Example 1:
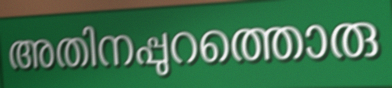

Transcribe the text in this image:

അതിനപ്പുറത്തൊരു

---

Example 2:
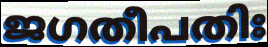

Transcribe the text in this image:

ജഗതീപതിഃ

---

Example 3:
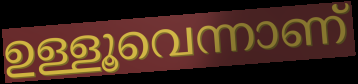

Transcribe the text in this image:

ഉള്ളൂവെന്നാണ്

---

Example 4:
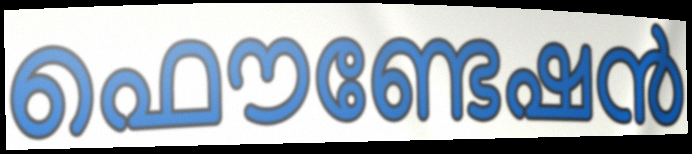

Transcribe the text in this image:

ഫൌണ്ടേഷൻ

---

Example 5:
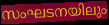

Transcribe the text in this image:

സംഘടനയിലും